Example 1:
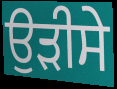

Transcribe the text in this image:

ਉੜੀਸੇ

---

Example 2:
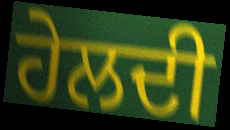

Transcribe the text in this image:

ਹੇਲਦੀ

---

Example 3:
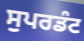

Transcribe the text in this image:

ਸੁਪਰਡੰਟ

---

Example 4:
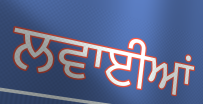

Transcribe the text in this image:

ਲਵਾਈਆਂ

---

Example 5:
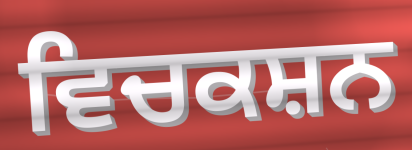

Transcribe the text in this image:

ਵਿਚਕਸ਼ਨ